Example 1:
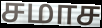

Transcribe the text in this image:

சமாச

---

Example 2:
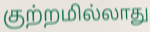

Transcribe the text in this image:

குற்றமில்லாது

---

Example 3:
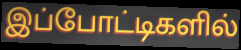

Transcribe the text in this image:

இப்போட்டிகளில்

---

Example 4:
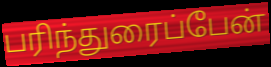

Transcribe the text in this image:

பரிந்துரைப்பேன்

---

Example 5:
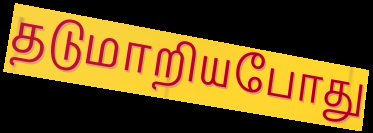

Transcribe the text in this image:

தடுமாறியபோது